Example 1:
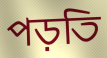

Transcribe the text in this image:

পড়তি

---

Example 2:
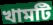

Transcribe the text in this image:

খামটি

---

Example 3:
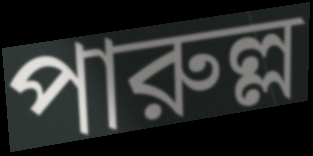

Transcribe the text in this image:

পারুল্ল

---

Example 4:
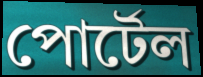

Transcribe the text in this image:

পোর্টেল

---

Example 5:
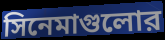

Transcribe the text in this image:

সিনেমাগুলোর